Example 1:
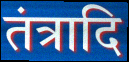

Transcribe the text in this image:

तंत्रादि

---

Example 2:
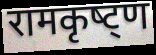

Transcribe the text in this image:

रामकृष्ट्ण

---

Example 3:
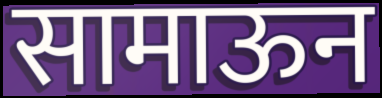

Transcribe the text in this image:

सामाऊन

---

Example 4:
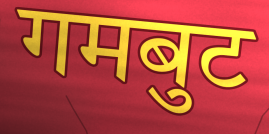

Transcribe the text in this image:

गमबुट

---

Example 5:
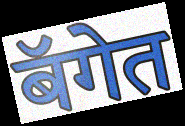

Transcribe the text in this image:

बॅगेत